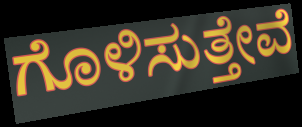
ಗೊಳಿಸುತ್ತೇವೆ